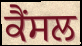
ਕੈਂਸਲ